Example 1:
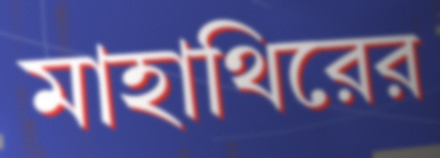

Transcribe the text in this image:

মাহাথিরের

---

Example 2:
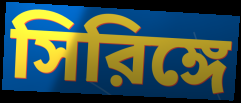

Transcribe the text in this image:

সিরিঙ্গে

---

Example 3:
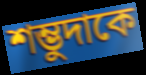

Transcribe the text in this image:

শম্ভুদাকে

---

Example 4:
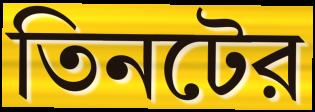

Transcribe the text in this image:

তিনটের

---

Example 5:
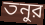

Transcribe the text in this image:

তনুর